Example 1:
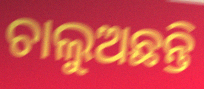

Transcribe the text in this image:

ଚାଲୁଅଛନ୍ତି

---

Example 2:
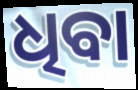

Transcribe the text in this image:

ଧିବା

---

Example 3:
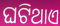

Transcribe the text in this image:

ଘଟିଥାଏ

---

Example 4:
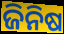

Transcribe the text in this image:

ଜିନିଷ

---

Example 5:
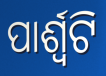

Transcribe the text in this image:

ପାର୍ଶ୍ଵଟି